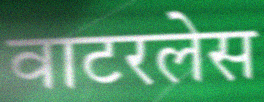
वाटरलेस